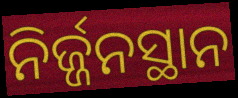
ନିର୍ଜ୍ଜନସ୍ଥାନ